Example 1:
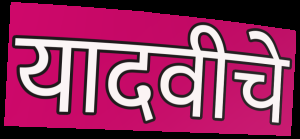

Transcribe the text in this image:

यादवीचे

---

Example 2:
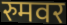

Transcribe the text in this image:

रुमवर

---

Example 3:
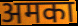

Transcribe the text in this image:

अमका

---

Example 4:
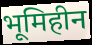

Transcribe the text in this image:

भूमिहीन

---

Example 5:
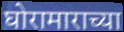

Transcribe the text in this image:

घोरामाराच्या